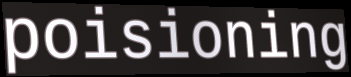
poisioning